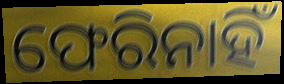
ଫେରିନାହିଁ